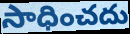
సాధించదు